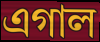
এগাল